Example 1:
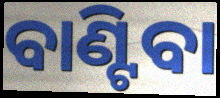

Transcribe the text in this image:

ବାଣ୍ଟିବା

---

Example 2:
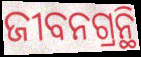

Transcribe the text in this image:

ଜୀବନଗ୍ରନ୍ଥି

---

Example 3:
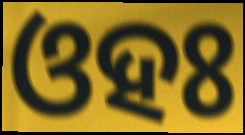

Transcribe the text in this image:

ଓହଃ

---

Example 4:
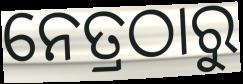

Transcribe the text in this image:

ନେତ୍ରଠାରୁ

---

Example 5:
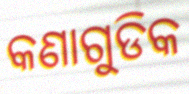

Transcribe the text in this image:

କଣାଗୁଡିକ